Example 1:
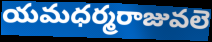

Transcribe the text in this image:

యమధర్మరాజువలె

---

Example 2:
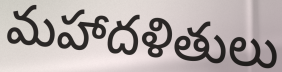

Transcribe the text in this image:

మహాదళితులు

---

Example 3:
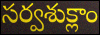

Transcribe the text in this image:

సర్వశుక్లాం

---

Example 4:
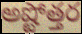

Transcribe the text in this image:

అష్టోత్తర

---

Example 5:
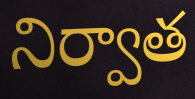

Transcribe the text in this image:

నిర్వాత